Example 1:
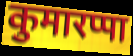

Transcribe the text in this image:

कुमारप्पा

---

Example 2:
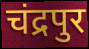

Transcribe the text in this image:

चंद्रपुर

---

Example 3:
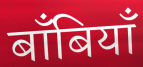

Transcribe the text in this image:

बाँबियाँ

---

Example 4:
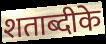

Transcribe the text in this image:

शताब्दीके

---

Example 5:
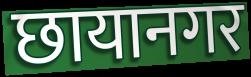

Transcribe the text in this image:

छायानगर